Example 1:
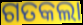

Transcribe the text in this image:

ଗତକଲା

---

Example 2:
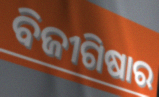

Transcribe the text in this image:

ବିଜୀଗିଷାର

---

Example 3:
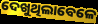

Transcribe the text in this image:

ଦେଖୁଥିଲାବେଳେ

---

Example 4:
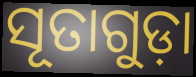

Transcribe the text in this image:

ସୂତାଗୁଡ଼ା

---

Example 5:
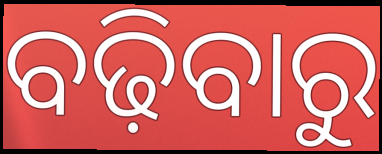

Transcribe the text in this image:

ବଢ଼ିବାରୁ